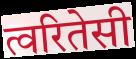
त्वरितेसी